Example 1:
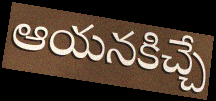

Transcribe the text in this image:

ఆయనకిచ్చే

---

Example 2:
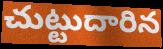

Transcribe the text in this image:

చుట్టుదారిన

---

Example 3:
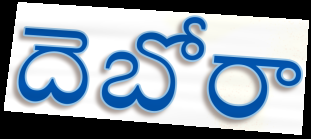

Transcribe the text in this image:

దెబోరా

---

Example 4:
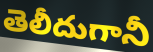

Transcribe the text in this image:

తెలీదుగానీ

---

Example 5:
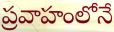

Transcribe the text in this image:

ప్రవాహంలోనే